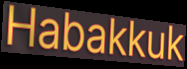
Habakkuk